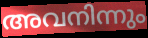
അവനിന്നും